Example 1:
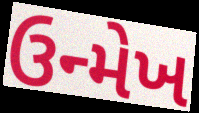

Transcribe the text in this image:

ઉન્મેખ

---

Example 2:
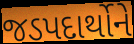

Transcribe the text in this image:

જડપદાર્થોને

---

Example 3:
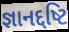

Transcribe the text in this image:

જ્ઞાનદ્દષ્ટિ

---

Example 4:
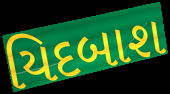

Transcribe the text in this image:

યિદબાશ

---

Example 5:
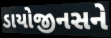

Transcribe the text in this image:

ડાયોજીનસને